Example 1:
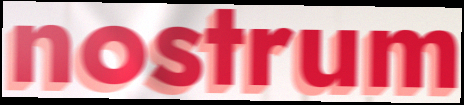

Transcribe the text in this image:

nostrum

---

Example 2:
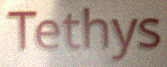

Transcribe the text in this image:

Tethys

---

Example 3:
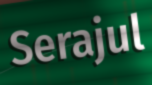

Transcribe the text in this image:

Serajul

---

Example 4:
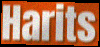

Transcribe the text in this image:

Harits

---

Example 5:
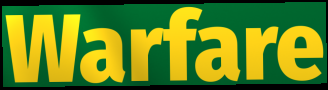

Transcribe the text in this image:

Warfare